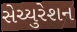
સેચ્યુરેશન